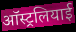
ऑस्ट्रलियाई